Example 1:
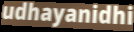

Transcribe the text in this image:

udhayanidhi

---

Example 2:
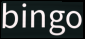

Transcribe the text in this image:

bingo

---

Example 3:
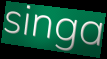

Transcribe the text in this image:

singa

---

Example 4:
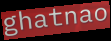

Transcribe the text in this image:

ghatnao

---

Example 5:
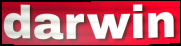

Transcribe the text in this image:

darwin